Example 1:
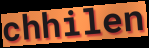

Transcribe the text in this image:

chhilen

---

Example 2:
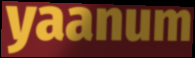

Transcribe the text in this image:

yaanum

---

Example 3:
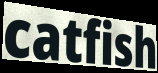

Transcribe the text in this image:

catfish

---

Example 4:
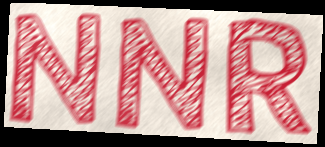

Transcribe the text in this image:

NNR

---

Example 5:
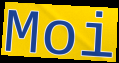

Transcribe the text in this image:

Moi